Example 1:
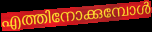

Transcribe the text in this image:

എത്തിനോക്കുമ്പോൾ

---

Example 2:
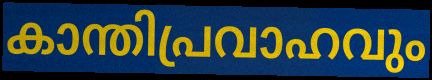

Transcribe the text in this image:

കാന്തിപ്രവാഹവും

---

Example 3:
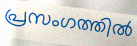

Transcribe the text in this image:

പ്രസംഗത്തിൽ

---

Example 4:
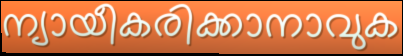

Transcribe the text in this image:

ന്യായീകരിക്കാനാവുക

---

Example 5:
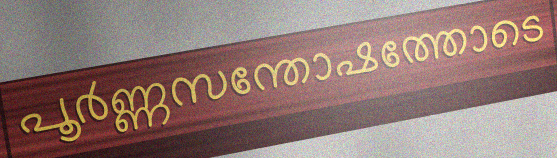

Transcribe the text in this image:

പൂർണ്ണസന്തോഷത്തോടെ